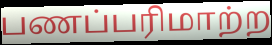
பணப்பரிமாற்ற